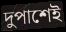
দুপাশেই